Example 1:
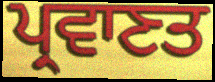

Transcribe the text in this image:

ਪ੍ਰਵਾਣਤ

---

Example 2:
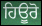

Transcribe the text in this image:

ਹਿਊਰੋ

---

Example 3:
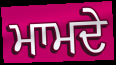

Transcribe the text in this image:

ਮਾਮਦੇ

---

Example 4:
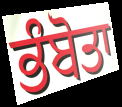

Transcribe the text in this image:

ਭੰਬੋਤਾ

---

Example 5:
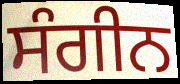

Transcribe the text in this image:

ਸੰਗੀਨ